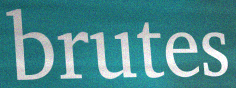
brutes